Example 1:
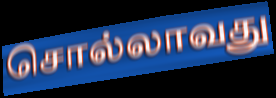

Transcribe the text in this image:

சொல்லாவது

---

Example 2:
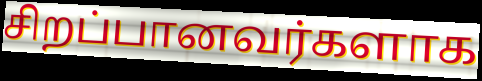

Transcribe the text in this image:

சிறப்பானவர்களாக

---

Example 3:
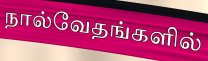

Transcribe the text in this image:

நால்வேதங்களில்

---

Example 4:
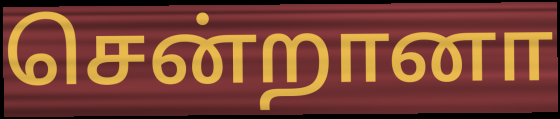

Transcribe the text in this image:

சென்றானா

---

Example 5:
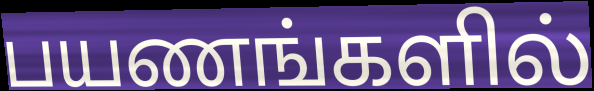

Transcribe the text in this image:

பயணங்களில்